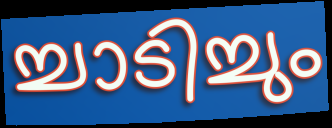
ച്ചാടിച്ചും